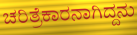
ಚರಿತ್ರೆಕಾರನಾಗಿದ್ದನು